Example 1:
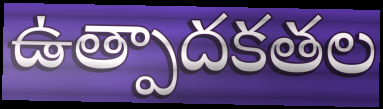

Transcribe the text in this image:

ఉత్పాదకతల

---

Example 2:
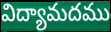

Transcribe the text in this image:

విద్యామదము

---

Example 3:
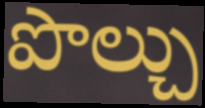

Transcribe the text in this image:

పొల్చు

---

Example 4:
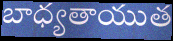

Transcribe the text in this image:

బాధ్యతాయుత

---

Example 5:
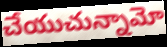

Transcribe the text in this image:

చేయుచున్నామో